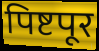
पिष्टपूर